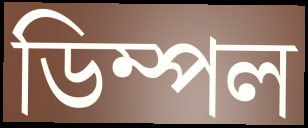
ডিম্পল